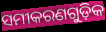
ସମୀକରଣଗୁଡ଼ିକ